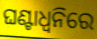
ଘଣ୍ଟାଧ୍ୱନିରେ